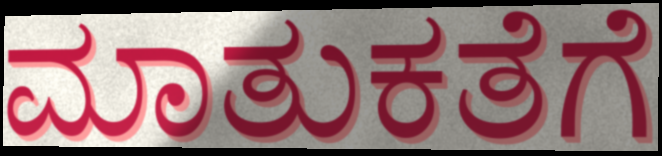
ಮಾತುಕತೆಗೆ